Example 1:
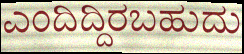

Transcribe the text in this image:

ಎಂದಿದ್ದಿರಬಹುದು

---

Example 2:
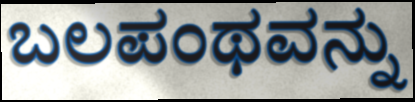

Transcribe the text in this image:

ಬಲಪಂಥವನ್ನು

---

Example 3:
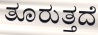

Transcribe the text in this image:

ತೂರುತ್ತದೆ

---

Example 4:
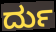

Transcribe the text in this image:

ರ್ದು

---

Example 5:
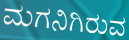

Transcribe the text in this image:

ಮಗನಿಗಿರುವ